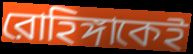
রোহিঙ্গাকেই